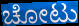
ಚೋಟು